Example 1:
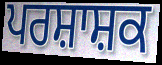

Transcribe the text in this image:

ਪਰਸ਼ਾਸ਼ਕ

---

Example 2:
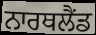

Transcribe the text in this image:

ਨਾਰਥਲੈਂਡ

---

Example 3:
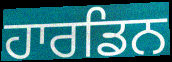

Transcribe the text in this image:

ਹਾਰਡਿਨ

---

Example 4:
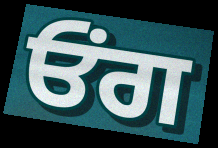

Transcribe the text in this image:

ਓਂਗ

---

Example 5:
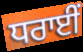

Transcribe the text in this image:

ਧਰਾਈਂ